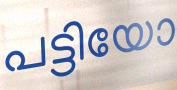
പട്ടിയോ